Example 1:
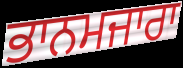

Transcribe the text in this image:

ਭਾਨਮਜਾਰਾ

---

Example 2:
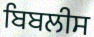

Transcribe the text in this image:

ਬਿਬਲੀਸ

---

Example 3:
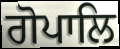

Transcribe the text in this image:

ਗੋਪਾਲਿ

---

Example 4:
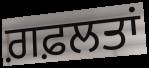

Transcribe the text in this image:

ਗ਼ਫ਼ਲਤਾਂ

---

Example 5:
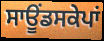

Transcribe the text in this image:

ਸਾਊਂਡਸਕੇਪਾਂ